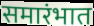
समारंभात